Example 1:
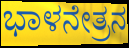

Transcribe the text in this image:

ಭಾಳನೇತ್ರನ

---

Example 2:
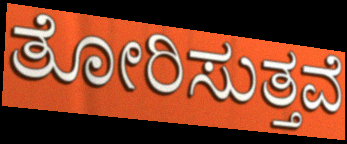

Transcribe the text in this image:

ತೋರಿಸುತ್ತವೆ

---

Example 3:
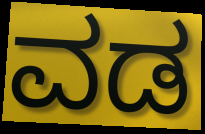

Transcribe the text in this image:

ವಡ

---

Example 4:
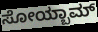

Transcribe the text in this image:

ಸೋಯ್ಬಾಮ್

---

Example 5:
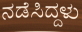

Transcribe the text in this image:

ನಡೆಸಿದ್ದಳು